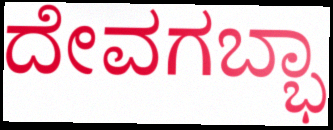
ದೇವಗಬ್ಭಾ